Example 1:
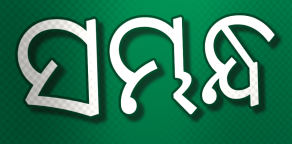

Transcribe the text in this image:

ସମ୍ଭନ୍ଧ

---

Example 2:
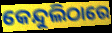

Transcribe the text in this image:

କେନ୍ଦୁଲିଠାରେ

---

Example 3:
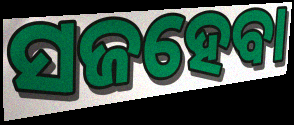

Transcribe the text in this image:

ସଜହେବା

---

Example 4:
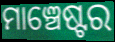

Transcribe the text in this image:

ମାଞ୍ଚେଷ୍ଟର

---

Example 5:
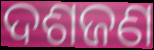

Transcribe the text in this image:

ଦଶଜଣ